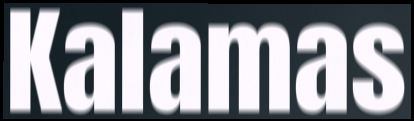
Kalamas